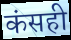
कंसही